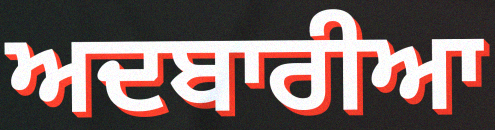
ਅਦਬਾਰੀਆ